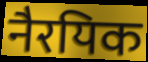
नैरयिक